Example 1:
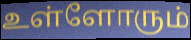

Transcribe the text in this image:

உள்ளோரும்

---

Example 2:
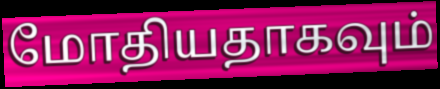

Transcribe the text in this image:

மோதியதாகவும்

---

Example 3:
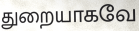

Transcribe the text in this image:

துறையாகவே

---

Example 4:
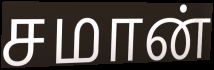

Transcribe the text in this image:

சமான்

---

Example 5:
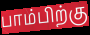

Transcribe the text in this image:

பாம்பிற்கு